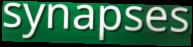
synapses